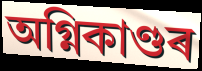
অগ্নিকাণ্ডৰ